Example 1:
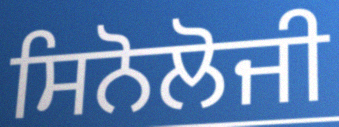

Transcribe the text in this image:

ਸਿਨੋਲੋਜੀ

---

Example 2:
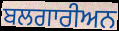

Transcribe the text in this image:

ਬਲਗਾਰੀਅਨ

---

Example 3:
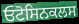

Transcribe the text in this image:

ਓਟੋਸਿਨਕਲਸ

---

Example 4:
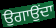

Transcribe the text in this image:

ਉਗਾਉਂਦਾ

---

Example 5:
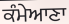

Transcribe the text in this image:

ਕੰਮੇਆਣਾ